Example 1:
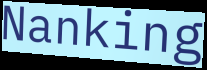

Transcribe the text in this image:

Nanking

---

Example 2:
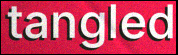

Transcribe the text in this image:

tangled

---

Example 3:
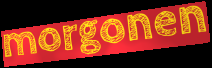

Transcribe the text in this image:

morgonen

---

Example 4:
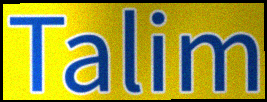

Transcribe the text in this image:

Talim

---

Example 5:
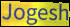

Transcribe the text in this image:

Jogesh